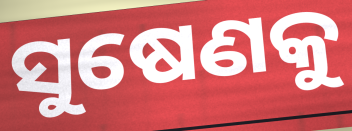
ସୁଷେଣକୁ